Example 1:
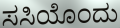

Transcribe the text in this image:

ಸಸಿಯೊಂದು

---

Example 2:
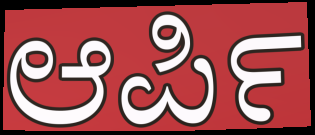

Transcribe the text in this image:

ಆರ್ಪಿ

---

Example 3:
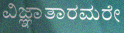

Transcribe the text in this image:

ವಿಜ್ಞಾತಾರಮರೇ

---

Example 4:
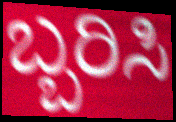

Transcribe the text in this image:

ಬ್ಬರಿಸಿ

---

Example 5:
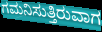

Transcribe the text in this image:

ಗಮನಿಸುತ್ತಿರುವಾಗ